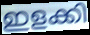
ഇളക്കി